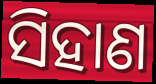
ସିହାଣ